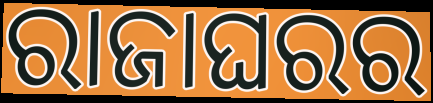
ରାଜାଘରର